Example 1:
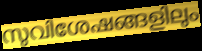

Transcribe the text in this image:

സുവിശേഷങ്ങളിലും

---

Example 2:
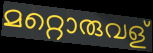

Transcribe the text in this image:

മറ്റൊരുവള്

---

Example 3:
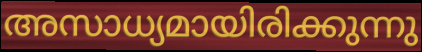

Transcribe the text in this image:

അസാധ്യമായിരിക്കുന്നു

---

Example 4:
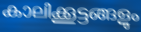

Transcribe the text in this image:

കാലിക്കൂട്ടങ്ങളും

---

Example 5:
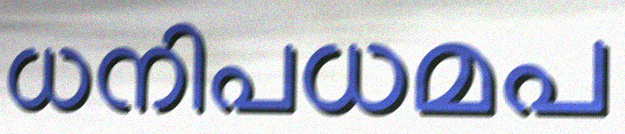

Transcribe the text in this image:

ധനിപധമപ